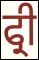
ਫ੍ਰੀ